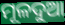
ମୂଳଦୁଆ